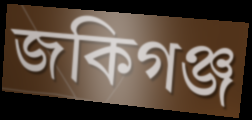
জকিগঞ্জ